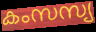
കംസസ്യ